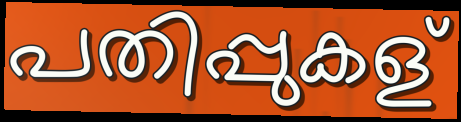
പതിപ്പുകള്